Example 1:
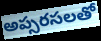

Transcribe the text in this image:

అప్సరసలతో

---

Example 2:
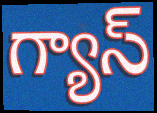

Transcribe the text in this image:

గ్యాస్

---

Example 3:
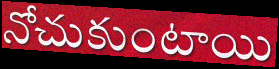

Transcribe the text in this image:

నోచుకుంటాయి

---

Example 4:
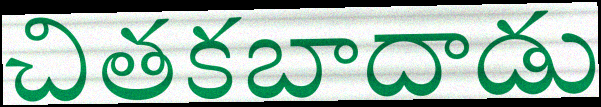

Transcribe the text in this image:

చితకబాదాడు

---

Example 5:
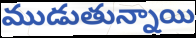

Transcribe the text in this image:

ముడుతున్నాయి